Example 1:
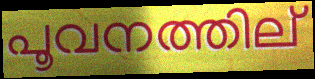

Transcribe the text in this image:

പൂവനത്തില്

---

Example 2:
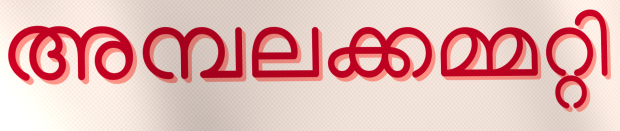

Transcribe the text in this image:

അമ്പലക്കമ്മറ്റി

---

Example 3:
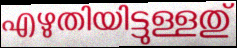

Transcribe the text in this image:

എഴുതിയിട്ടുള്ളതു്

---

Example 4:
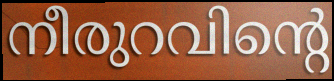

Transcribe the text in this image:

നീരുറവിന്റെ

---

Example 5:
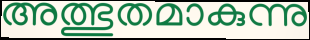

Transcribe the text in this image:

അത്ഭുതമാകുന്നു